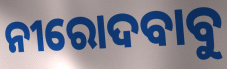
ନୀରୋଦବାବୁ